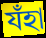
যঁহা